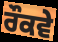
ਰੌਕਵੇ